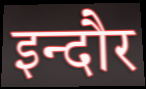
इन्दौर